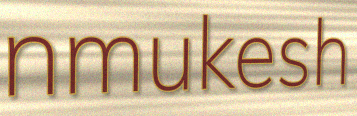
nmukesh